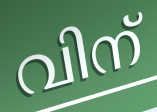
വിന്